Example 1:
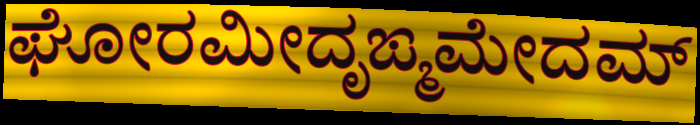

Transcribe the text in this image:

ಘೋರಮೀದೃಙ್ಮಮೇದಮ್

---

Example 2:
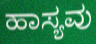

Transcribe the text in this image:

ಹಾಸ್ಯವು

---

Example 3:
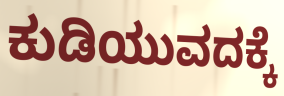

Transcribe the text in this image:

ಕುಡಿಯುವದಕ್ಕೆ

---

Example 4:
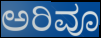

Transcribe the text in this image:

ಅರಿವೂ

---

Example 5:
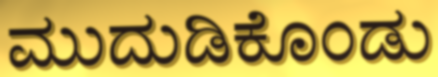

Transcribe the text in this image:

ಮುದುಡಿಕೊಂಡು